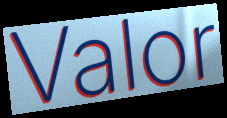
Valor